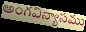
అంగవిన్యాసము